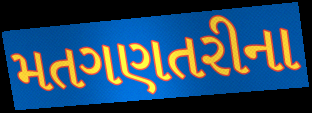
મતગણતરીના